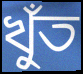
খুঁত